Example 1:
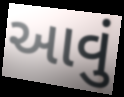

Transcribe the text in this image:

આવું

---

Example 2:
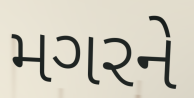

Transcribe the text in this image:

મગરને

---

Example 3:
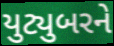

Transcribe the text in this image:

યુટ્યુબરને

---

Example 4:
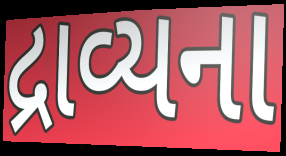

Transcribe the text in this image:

દ્રાવ્યના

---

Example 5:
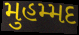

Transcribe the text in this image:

મુહમ્મદ